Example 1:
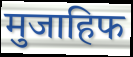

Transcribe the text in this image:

मुजाहिफ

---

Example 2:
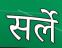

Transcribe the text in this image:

सर्ले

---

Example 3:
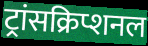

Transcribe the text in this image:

ट्रांसक्रिप्शनल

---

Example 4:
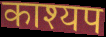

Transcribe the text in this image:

काश्यप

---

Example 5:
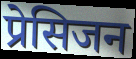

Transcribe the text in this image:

प्रेसिजन